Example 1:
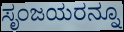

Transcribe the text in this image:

ಸೃಂಜಯರನ್ನೂ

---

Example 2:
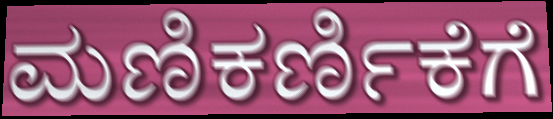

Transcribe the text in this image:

ಮಣಿಕರ್ಣಿಕೆಗೆ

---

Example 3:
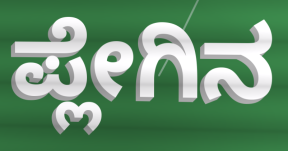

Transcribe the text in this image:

ಪ್ಲೇಗಿನ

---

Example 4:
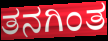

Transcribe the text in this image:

ತನಗಿಂತ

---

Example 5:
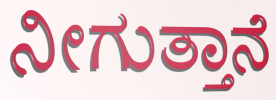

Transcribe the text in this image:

ನೀಗುತ್ತಾನೆ